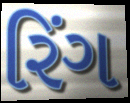
રિંગ